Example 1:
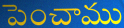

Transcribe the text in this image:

పెంచాము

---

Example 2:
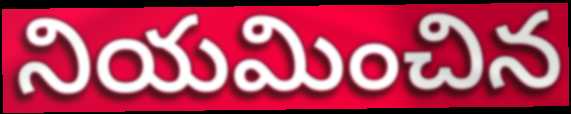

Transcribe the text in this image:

నియమించిన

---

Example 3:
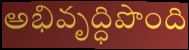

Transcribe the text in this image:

అభివృద్ధిపొంది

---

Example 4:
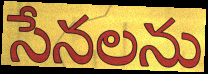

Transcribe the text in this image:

సేనలను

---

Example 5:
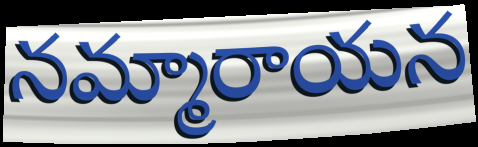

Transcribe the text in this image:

నమ్మారాయన